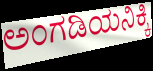
ಅಂಗಡಿಯನಿಕ್ಕಿ